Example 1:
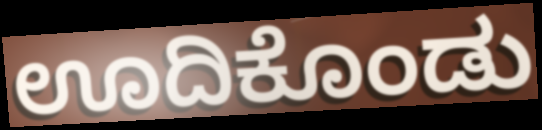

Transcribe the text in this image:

ಊದಿಕೊಂಡು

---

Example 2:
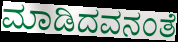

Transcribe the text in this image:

ಮಾಡಿದವನಂತೆ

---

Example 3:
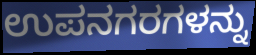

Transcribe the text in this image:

ಉಪನಗರಗಳನ್ನು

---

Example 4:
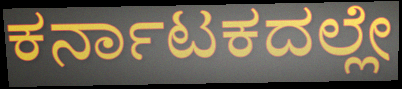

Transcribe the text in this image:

ಕರ್ನಾಟಕದಲ್ಲೇ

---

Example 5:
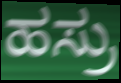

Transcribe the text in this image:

ಹಸ್ರು